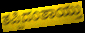
ತಪ್ಪಿದಂತಾಯ್ತು